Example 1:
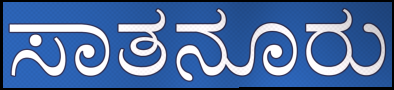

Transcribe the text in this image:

ಸಾತನೂರು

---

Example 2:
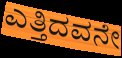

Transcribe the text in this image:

ಎತ್ತಿದವನೇ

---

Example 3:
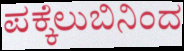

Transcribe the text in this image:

ಪಕ್ಕೆಲುಬಿನಿಂದ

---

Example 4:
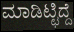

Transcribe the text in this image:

ಮಾಡಿಟ್ಟಿದ್ದೆ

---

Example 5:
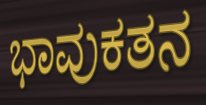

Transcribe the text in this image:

ಭಾವುಕತನ